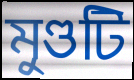
মুণ্ডটি